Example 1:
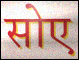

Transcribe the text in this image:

सोए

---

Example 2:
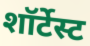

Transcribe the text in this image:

शॉर्टेस्ट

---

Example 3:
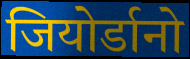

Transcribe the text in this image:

जियोर्डानो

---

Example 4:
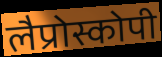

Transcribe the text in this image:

लैप्रोस्कोपी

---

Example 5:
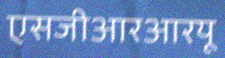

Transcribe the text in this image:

एसजीआरआरयू